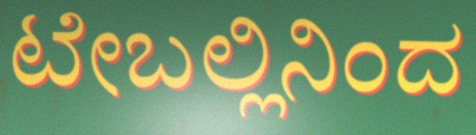
ಟೇಬಲ್ಲಿನಿಂದ